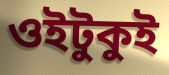
ওইটুকুই